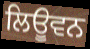
ਲਿਊਵਨ